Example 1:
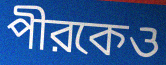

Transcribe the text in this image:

পীরকেও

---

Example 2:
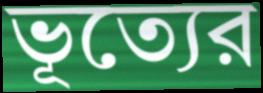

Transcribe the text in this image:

ভূত্যের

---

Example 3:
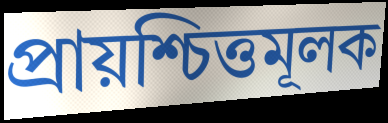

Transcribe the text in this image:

প্রায়শ্চিত্তমূলক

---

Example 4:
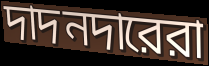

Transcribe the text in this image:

দাদনদারেরা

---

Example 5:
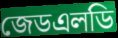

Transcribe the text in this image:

জেডএলডি